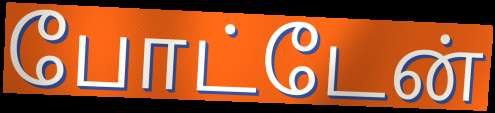
போட்டேன்